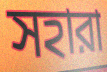
সহারা